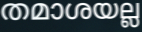
തമാശയല്ല